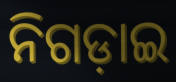
ନିଗଡ଼ାଇ